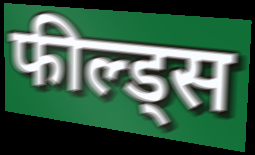
फील्ड्स